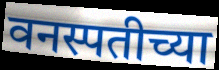
वनस्पतीच्या